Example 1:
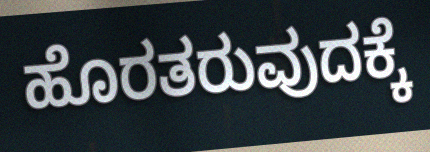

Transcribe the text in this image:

ಹೊರತರುವುದಕ್ಕೆ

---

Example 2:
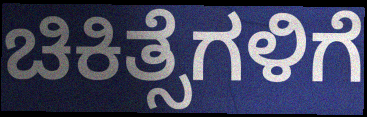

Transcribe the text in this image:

ಚಿಕಿತ್ಸೆಗಳಿಗೆ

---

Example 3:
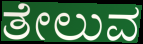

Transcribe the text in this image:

ತೇಲುವ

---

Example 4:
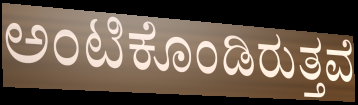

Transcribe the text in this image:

ಅಂಟಿಕೊಂಡಿರುತ್ತವೆ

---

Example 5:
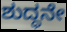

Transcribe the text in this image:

ಶುದ್ಧನೇ